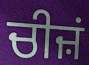
ਚੀਜ਼ਂ